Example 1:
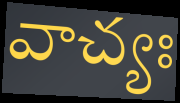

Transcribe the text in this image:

వాచ్యః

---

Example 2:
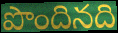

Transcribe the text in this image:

పొందినది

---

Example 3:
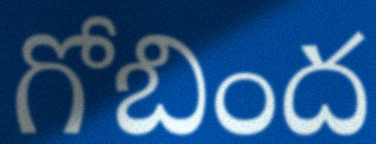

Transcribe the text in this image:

గోబింద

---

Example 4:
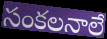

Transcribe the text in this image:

సంకలనాలే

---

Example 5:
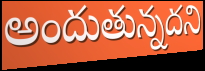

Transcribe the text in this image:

అందుతున్నదని